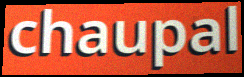
chaupal